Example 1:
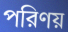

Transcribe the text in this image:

পরিণয়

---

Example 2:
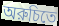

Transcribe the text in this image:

অরুচিতে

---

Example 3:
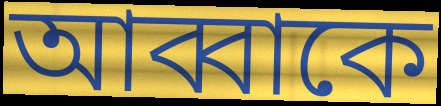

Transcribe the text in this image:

আব্বাকে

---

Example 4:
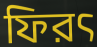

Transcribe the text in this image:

ফিরৎ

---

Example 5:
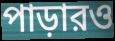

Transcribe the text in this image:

পাড়ারও